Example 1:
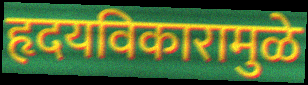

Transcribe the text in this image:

हृदयविकारामुळे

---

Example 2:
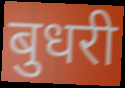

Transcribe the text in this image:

बुधरी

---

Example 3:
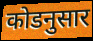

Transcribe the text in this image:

कोडनुसार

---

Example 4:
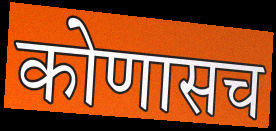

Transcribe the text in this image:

कोणासच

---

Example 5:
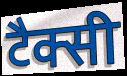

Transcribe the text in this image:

टैक्सी